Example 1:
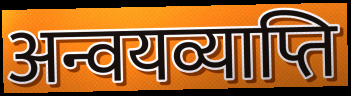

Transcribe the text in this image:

अन्वयव्याप्ति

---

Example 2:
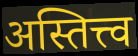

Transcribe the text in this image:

अस्तित्त्व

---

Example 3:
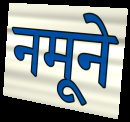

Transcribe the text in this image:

नमूने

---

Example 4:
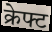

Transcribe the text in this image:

क्रेफ्ट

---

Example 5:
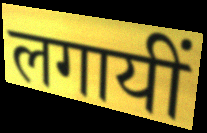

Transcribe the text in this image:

लगायीं